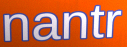
nantr